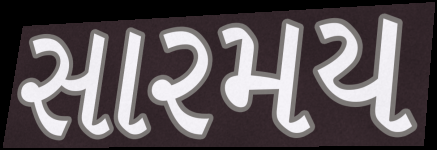
સારમય